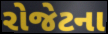
રોજેટના